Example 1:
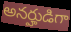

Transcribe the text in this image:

అనర్హుడిగా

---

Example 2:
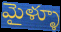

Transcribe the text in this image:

మైళ్ళూ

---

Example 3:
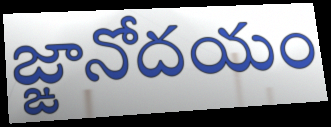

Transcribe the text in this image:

జ్ఙానోదయం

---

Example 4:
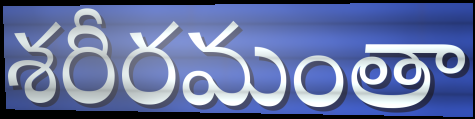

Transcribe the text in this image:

శరీరమంతా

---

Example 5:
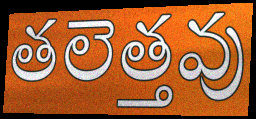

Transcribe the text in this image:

తలెత్తవు